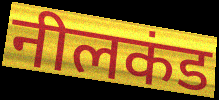
नीलकंड